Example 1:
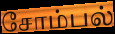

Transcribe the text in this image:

சோம்பல்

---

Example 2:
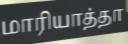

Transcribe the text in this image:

மாரியாத்தா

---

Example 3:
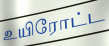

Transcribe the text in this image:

உயிரோட்ட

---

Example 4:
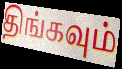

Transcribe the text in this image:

திங்கவும்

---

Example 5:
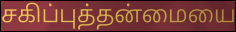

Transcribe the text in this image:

சகிப்புத்தன்மையை